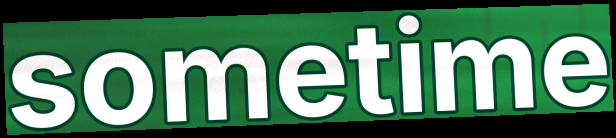
sometime